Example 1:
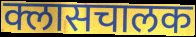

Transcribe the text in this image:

क्‍लासचालक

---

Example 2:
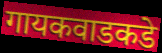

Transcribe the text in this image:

गायकवाडकडे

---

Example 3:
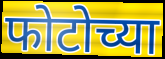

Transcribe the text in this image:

फोटोच्या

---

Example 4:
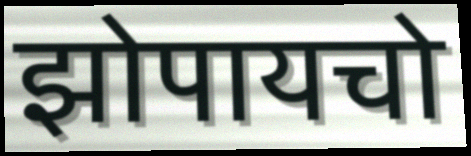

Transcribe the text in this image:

झोपायचो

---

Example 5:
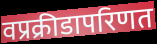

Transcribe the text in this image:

वप्रक्रीडापरिणत